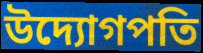
উদ্যোগপতি